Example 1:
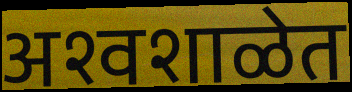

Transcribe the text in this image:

अश्वशाळेत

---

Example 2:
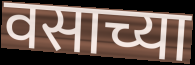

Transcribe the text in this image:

वसाच्या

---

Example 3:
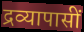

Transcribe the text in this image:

द्रव्यापासीं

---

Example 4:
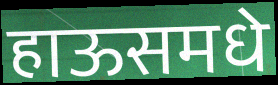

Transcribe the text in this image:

हाऊसमधे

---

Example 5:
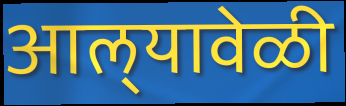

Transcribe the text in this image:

आल्यावेळी